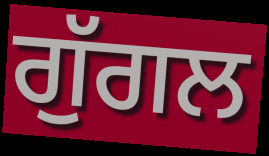
ਗੁੱਗਲ